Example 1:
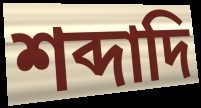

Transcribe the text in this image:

শব্দাদি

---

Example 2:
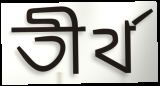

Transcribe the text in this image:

তীর্থ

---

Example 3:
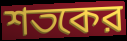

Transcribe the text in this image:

শতকের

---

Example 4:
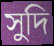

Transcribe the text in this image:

সুদি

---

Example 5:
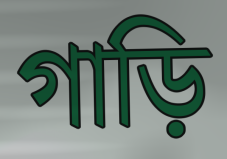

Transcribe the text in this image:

গাড়ি